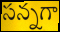
సన్నగా